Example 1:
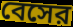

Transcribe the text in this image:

বেসের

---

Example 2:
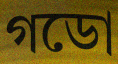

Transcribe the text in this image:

গডো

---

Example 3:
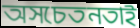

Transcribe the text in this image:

অসচেতনতাই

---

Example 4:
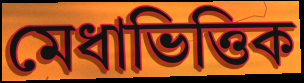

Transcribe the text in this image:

মেধাভিত্তিক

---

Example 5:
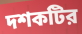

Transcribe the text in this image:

দশকটির